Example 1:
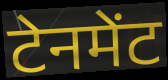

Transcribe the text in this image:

टेनमेंट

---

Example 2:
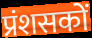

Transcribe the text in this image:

प्रंशसकों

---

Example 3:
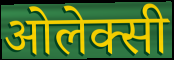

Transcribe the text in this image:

ओलेक्सी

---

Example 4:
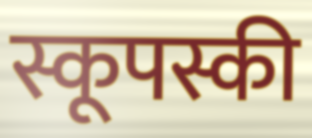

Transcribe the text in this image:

स्कूपस्की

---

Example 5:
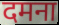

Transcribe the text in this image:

दमना